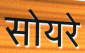
सोयरे